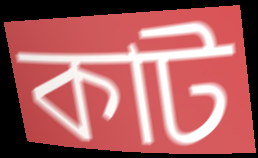
কাট